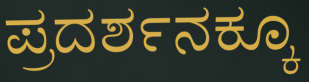
ಪ್ರದರ್ಶನಕ್ಕೂ